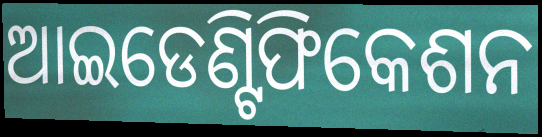
ଆଇଡେଣ୍ଟିଫିକେଶନ